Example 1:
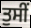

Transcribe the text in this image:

ਤੁਸੀਂ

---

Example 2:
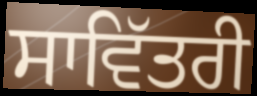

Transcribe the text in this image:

ਸਾਵਿੱਤਰੀ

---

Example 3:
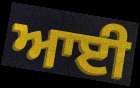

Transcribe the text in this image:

ਆਈ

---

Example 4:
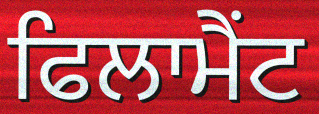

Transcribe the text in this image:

ਫਿਲਾਮੈਂਟ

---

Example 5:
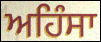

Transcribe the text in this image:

ਅਹਿੰਸਾ